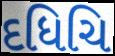
દધિચિ